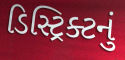
ડિસ્ટ્રિક્ટનું